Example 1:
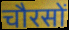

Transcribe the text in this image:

चौरसों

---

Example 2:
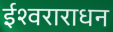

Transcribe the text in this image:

ईश्वराराधन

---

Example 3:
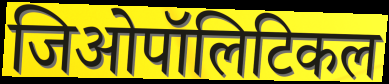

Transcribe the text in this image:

जिओपॉलिटिकल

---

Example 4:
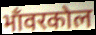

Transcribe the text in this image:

भाँवरकोल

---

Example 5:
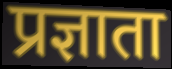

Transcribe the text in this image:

प्रज्ञाता